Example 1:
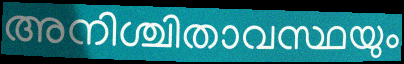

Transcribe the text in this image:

അനിശ്ചിതാവസ്ഥയും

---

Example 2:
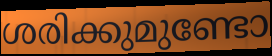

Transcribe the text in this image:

ശരിക്കുമുണ്ടോ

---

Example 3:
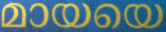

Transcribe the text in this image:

മായയെ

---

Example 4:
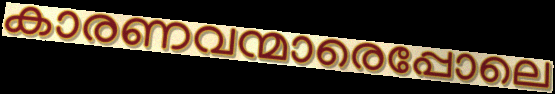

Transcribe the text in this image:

കാരണവന്മാരെപ്പോലെ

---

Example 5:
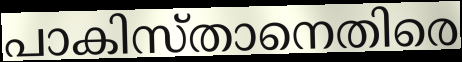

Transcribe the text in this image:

പാകിസ്താനെതിരെ